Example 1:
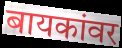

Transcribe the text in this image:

बायकांवर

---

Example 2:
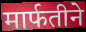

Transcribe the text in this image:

मार्फतीने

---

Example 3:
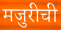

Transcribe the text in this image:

मजुरीची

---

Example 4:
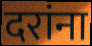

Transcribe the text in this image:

दरांना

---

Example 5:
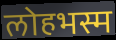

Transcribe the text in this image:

लोहभस्म